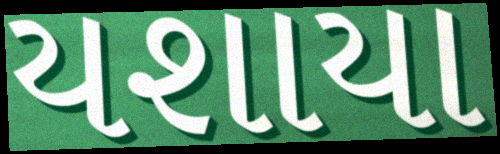
યશાયા